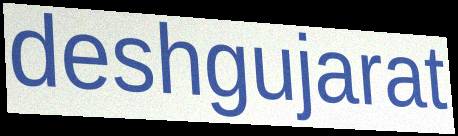
deshgujarat